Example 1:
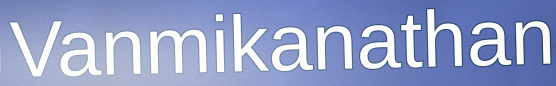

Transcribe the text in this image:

Vanmikanathan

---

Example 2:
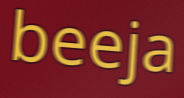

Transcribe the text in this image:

beeja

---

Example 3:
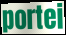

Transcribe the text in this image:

portei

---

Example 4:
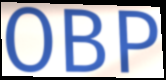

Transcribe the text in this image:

OBP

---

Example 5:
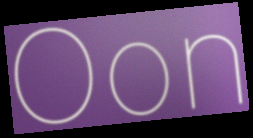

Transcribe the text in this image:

Oon